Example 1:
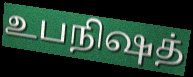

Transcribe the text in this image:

உபநிஷத்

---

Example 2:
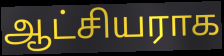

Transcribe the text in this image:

ஆட்சியராக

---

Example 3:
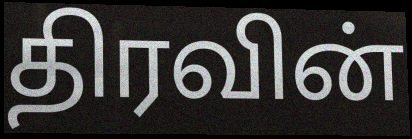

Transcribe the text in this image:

திரவின்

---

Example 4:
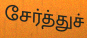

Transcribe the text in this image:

சேர்த்துச்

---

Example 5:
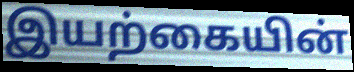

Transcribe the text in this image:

இயற்கையின்